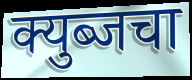
क्युब्जचा